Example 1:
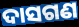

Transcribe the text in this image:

ଦାସଗଣ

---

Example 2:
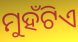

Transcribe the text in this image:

ମୁହଁଟିଏ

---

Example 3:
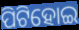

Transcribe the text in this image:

ପିଟିହୋଇ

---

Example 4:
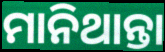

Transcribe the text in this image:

ମାନିଥାନ୍ତା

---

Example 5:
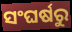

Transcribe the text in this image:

ସଂଘର୍ଷରୁ